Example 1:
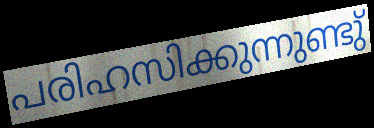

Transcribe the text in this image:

പരിഹസിക്കുന്നുണ്ടു്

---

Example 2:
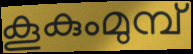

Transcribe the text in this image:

കൂകുംമുമ്പ്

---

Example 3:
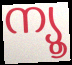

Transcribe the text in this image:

ന്യൂ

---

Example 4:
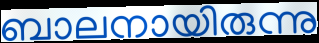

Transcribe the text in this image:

ബാലനായിരുന്നു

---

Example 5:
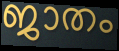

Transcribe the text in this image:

ജാതം